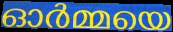
ഓർമ്മയെ